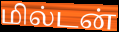
மில்டன்